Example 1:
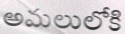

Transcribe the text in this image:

అమలులోకి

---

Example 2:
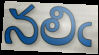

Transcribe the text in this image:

నలిఁ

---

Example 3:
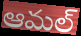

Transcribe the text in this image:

ఆమల్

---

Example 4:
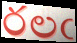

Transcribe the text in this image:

రలఁ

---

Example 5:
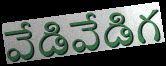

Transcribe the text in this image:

వేడివేడిగ